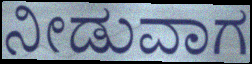
ನೀಡುವಾಗ